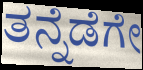
ತನ್ನೆಡೆಗೇ